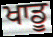
ਖਾਡੂ